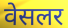
वेसलर